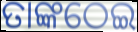
ତାଙ୍କଠେଇ